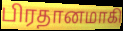
பிரதானமாகி